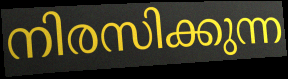
നിരസിക്കുന്ന